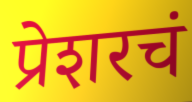
प्रेशरचं